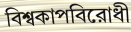
বিশ্বকাপবিরোধী